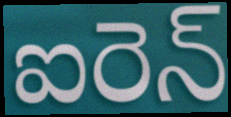
ఐరెన్